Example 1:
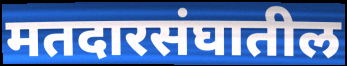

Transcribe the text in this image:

मतदारसंघातील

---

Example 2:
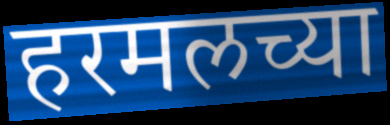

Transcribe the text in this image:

हरमलच्या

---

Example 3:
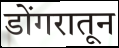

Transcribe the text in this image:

डोंगरातून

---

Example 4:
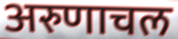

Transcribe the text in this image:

अरुणाचल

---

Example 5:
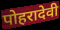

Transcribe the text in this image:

पोहरादेवी